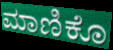
ಮಾಣಿಕೊ